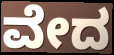
ವೇದ